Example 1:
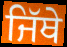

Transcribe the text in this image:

ਜਿੱਥੇ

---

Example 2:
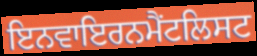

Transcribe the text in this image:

ਇਨਵਾਇਰਨਮੈਂਟਲਿਸਟ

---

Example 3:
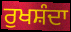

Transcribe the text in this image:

ਰੁਖਸ਼ੰਦਾ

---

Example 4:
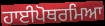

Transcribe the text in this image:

ਹਾਈਪੋਥਰਮਿਆ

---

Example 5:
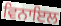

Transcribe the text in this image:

ਵਿਨਾਇਲ